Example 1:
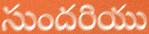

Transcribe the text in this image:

సుందరియు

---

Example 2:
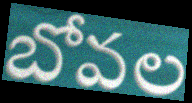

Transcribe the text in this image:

బోవల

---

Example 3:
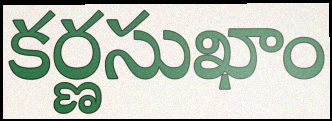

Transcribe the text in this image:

కర్ణసుఖాం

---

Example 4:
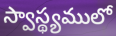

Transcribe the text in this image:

స్వాస్థ్యములో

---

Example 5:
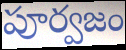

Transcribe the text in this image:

పూర్వజం